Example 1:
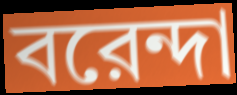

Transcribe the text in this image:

বরেন্দা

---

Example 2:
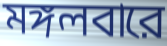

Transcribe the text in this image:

মঙ্গলবারে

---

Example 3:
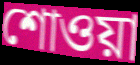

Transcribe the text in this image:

শোওয়া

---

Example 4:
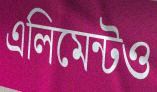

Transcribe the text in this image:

এলিমেন্টও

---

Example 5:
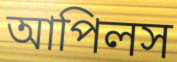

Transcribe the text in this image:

আপিলস